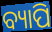
ବ୍ୟାପି